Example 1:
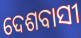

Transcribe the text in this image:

ଦେଶବାସୀ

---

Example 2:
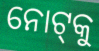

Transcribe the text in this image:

ନୋଟ୍‌କୁ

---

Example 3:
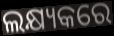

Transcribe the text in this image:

ଲକ୍ଷ୍ୟକରେ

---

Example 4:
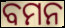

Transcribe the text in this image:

ବମନ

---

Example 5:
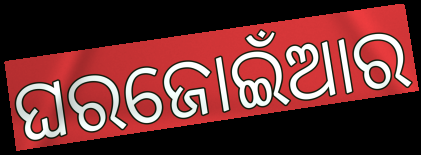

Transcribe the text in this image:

ଘରଜୋଇଁଆର